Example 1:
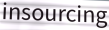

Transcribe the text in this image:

insourcing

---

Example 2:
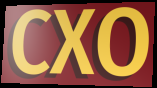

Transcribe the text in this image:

CXO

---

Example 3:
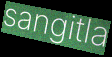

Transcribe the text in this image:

sangitla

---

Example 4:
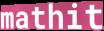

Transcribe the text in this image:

mathit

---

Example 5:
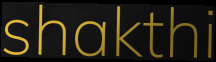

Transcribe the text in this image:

shakthi